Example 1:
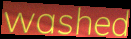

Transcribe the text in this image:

washed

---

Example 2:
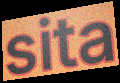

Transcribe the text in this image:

sita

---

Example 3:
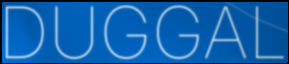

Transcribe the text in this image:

DUGGAL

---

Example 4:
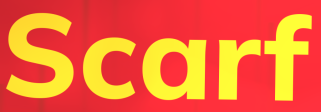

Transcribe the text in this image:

Scarf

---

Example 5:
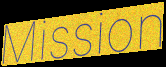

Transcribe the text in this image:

Mission